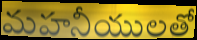
మహనీయులతో